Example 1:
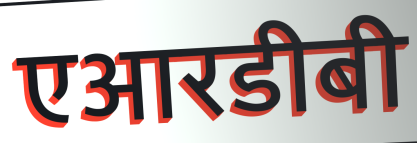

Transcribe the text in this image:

एआरडीबी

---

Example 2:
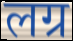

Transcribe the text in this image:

लग्र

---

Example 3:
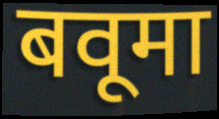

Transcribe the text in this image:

बवूमा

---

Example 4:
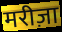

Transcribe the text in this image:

मरीज़ा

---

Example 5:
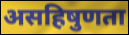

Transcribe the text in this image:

असहिषुणता